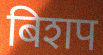
बिशप